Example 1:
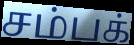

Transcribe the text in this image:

சம்பக்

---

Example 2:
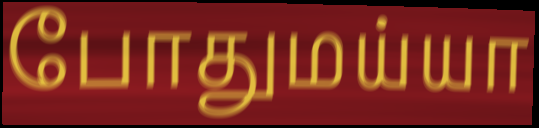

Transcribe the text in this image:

போதுமய்யா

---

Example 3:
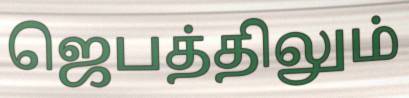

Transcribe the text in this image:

ஜெபத்திலும்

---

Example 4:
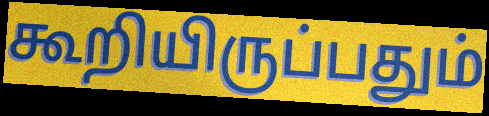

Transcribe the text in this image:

கூறியிருப்பதும்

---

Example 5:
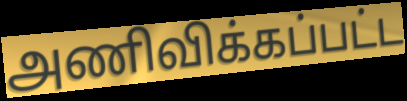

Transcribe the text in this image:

அணிவிக்கப்பட்ட